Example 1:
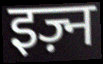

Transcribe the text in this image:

इज़्न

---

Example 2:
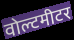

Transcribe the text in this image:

वोल्टमीटर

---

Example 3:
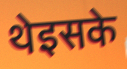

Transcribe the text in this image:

थेइसके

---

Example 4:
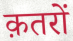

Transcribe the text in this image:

क़तरों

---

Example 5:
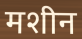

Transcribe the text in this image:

मशीन